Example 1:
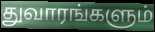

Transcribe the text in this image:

துவாரங்களும்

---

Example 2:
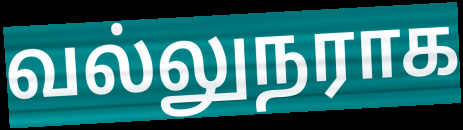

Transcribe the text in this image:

வல்லுநராக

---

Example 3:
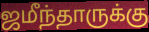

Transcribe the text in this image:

ஜமீந்தாருக்கு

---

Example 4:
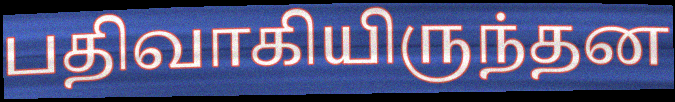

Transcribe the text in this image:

பதிவாகியிருந்தன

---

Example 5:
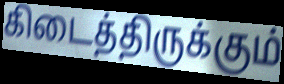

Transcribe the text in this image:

கிடைத்திருக்கும்